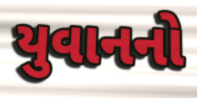
યુવાનનો